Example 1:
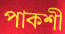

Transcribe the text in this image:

পাকশী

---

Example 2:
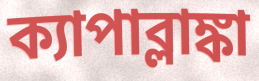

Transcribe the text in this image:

ক্যাপাব্লাঙ্কা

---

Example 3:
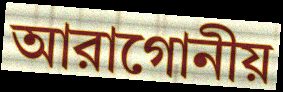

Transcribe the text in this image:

আরাগোনীয়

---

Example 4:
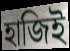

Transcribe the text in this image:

হাজিই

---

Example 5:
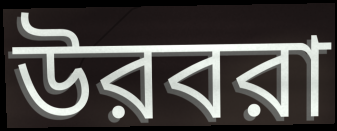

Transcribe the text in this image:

উরবরা